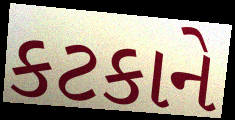
કટકાને